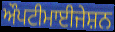
ਔਪਟੀਮਾਈਜੇਸ਼ਨ